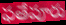
ఫతేపూరు